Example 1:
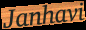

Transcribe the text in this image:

Janhavi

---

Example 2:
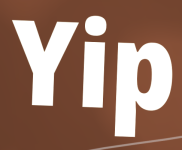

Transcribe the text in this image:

Yip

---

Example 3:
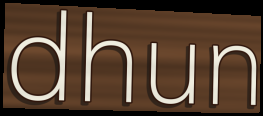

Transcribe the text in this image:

dhun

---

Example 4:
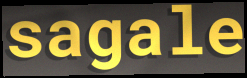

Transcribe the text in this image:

sagale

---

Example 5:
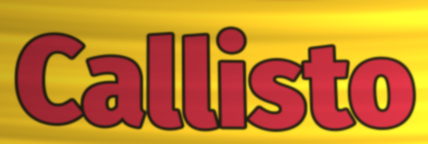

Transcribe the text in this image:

Callisto